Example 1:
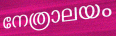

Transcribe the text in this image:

നേത്രാലയം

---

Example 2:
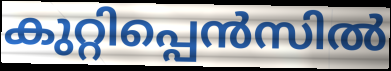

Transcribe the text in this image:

കുറ്റിപ്പെൻസിൽ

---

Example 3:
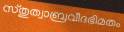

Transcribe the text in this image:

സ്തുത്വാബ്രവീദഭിമതം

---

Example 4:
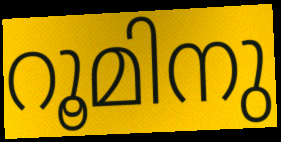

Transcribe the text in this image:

റൂമിനു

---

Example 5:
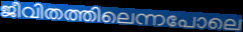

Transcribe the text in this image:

ജീവിതത്തിലെന്നപോലെ